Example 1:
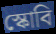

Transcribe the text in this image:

স্কোবি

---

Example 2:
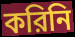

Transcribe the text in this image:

করিনি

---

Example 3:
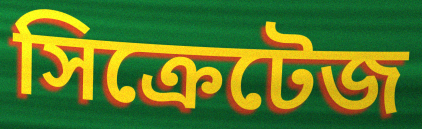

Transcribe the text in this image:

সিক্রেটেজ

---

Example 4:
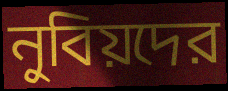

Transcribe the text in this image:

নুবিয়দের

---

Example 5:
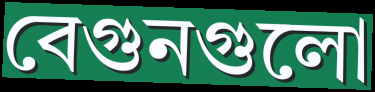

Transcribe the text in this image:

বেগুনগুলো